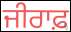
ਜੀਰਾਫ਼